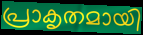
പ്രാകൃതമായി